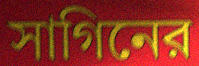
সাগিনের